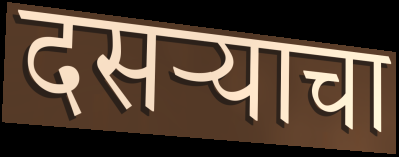
दसऱ्याचा